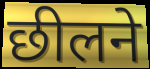
छीलने